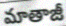
మాతాజీ